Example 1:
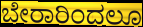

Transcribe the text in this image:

ಬೇರಾರಿಂದಲೂ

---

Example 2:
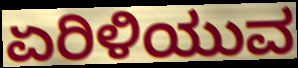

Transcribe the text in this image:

ಏರಿಳಿಯುವ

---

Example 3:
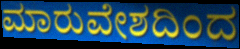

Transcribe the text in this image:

ಮಾರುವೇಶದಿಂದ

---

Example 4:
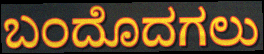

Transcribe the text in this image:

ಬಂದೊದಗಲು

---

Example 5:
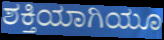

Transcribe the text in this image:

ಶಕ್ತಿಯಾಗಿಯೂ